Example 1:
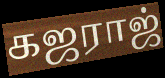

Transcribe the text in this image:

கஜராஜ்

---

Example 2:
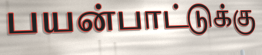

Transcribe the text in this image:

பயன்பாட்டுக்கு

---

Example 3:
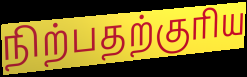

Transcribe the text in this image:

நிற்பதற்குரிய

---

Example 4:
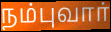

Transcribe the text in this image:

நம்புவார்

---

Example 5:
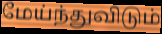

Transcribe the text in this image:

மேய்ந்துவிடும்